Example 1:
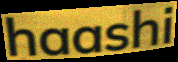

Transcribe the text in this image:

haashi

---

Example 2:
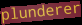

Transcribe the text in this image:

plunderer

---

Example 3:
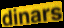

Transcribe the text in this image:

dinars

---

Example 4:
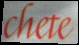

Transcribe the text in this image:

chete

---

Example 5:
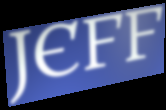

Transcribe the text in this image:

JEFF